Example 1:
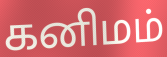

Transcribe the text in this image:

கனிமம்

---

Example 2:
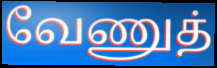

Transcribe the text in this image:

வேணுத்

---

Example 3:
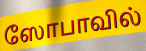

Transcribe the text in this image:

ஸோபாவில்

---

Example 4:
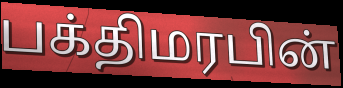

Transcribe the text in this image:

பக்திமரபின்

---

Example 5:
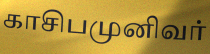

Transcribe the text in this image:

காசிபமுனிவர்